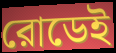
রোডেই